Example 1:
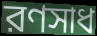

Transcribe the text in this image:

রণসাধ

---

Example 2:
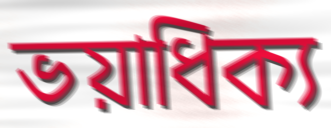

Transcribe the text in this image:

ভয়াধিক্য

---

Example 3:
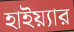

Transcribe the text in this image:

হাইয়্যার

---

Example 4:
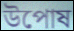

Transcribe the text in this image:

উপোষ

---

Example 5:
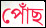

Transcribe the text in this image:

পোঁছ